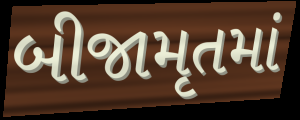
બીજામૃતમાં